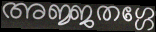
അജ്ജതഗ്ഗേ